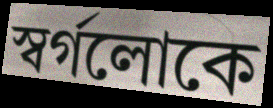
স্বর্গলোকে